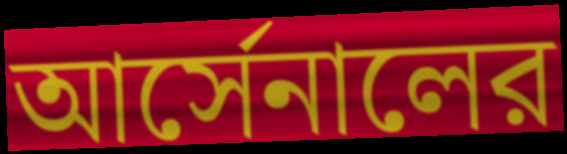
আর্সেনালের